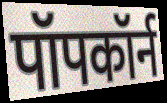
पॉपकॉर्न